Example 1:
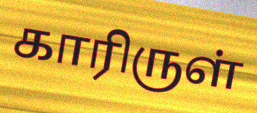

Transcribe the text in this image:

காரிருள்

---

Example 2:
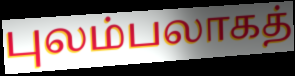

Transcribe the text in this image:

புலம்பலாகத்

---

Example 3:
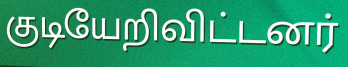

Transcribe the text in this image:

குடியேறிவிட்டனர்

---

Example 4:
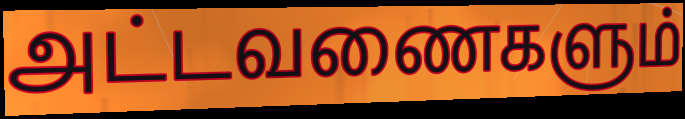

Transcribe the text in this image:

அட்டவணைகளும்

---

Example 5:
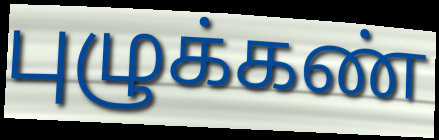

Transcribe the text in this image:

புழுக்கண்